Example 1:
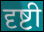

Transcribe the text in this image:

दृष्टी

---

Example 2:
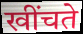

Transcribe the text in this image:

खींचते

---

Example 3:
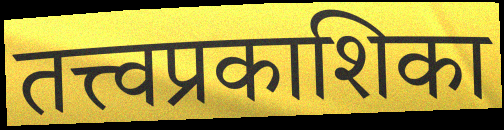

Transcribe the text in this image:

तत्त्वप्रकाशिका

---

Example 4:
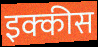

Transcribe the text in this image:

इक्‍कीस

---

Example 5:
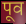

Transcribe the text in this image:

पूव